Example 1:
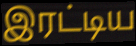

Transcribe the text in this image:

இரட்டிய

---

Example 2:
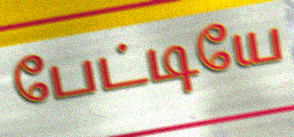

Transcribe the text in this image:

பேட்டியே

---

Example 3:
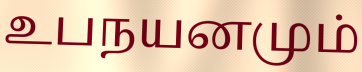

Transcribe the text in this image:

உபநயனமும்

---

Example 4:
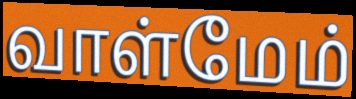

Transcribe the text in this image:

வாள்மேம்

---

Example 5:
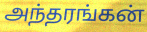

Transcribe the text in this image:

அந்தரங்கன்